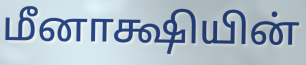
மீனாக்ஷியின்